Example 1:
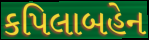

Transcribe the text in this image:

કપિલાબહેન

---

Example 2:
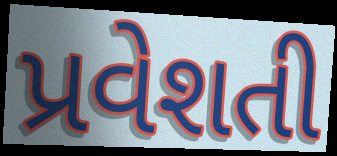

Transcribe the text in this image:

પ્રવેશતી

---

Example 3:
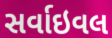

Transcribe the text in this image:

સર્વાઇવલ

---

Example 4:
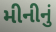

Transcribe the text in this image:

મીનીનું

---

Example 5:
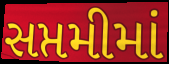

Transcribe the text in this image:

સપ્તમીમાં